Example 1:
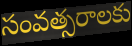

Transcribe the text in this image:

సంవత్సరాలకు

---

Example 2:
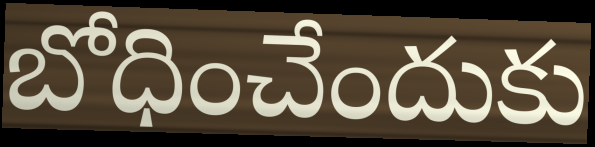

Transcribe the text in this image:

బోధించేందుకు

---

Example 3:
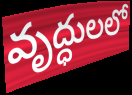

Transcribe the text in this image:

వృద్ధులలో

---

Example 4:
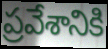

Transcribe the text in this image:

ప్రవేశానికి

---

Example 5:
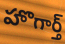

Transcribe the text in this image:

హొగార్త్